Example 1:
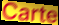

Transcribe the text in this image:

Carte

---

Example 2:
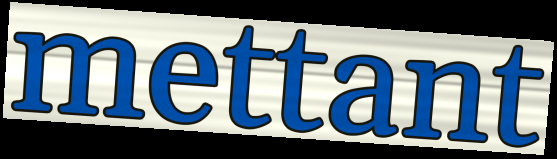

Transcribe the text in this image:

mettant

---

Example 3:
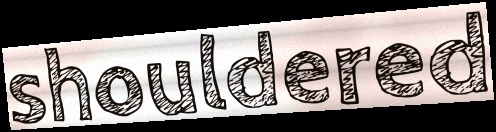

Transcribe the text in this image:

shouldered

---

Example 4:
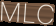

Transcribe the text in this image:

MLC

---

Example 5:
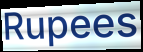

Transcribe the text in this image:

Rupees